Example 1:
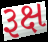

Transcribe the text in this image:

રૂક્ષ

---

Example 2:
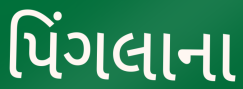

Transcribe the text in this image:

પિંગલાના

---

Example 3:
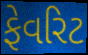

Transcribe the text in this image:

ફેવરિટ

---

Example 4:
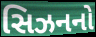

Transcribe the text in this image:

સિઝનનો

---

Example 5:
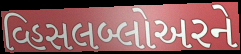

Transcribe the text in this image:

વ્હિસલબ્લોઅરને